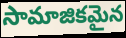
సామాజికమైన